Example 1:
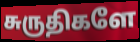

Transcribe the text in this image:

சுருதிகளே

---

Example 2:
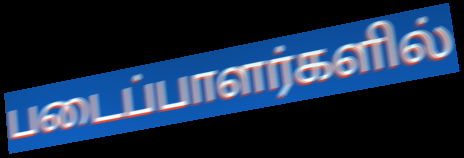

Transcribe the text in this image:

படைப்பாளர்களில்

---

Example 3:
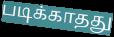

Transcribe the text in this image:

படிக்காதது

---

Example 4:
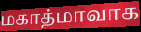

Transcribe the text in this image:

மகாத்மாவாக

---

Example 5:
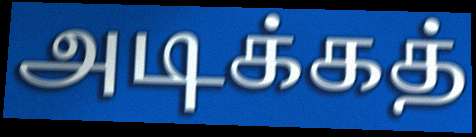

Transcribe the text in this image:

அடிக்கத்